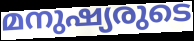
മനുഷ്യരുടെ